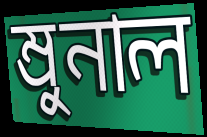
ম্রুনাল